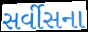
સર્વીસના